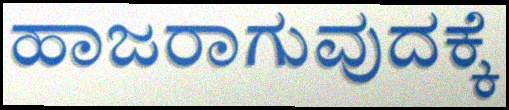
ಹಾಜರಾಗುವುದಕ್ಕೆ